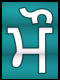
ਮੌ